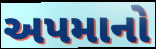
અપમાનો